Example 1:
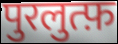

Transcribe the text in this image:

पुरलुत्फ़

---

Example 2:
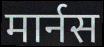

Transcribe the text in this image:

मार्नस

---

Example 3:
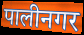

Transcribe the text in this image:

पालीनगर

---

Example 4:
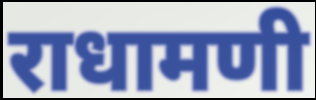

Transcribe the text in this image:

राधामणी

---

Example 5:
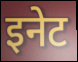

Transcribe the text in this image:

इनेट